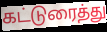
கட்டுரைத்து